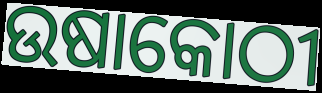
ଉଷାକୋଠୀ